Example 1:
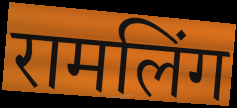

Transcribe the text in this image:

रामलिंग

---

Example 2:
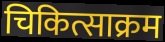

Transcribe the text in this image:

चिकित्साक्रम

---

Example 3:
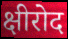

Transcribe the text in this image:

क्षीरोद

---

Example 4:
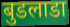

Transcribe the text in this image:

बुडलाडा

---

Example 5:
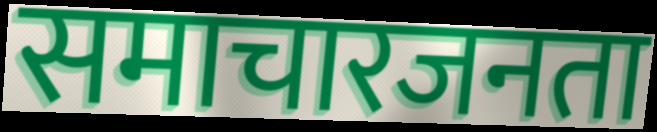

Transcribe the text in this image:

समाचारजनता